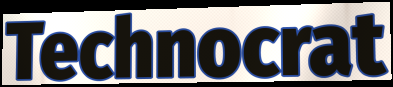
Technocrat